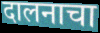
दालनाचा